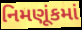
નિમણૂંકમાં